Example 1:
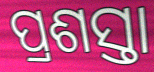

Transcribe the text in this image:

ପ୍ରଶସ୍ତା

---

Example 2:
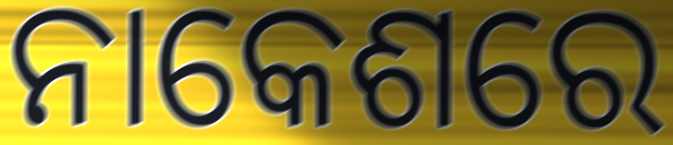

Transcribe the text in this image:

ନାକେଶରେ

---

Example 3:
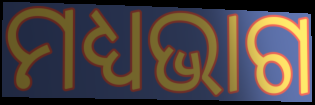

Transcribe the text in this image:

ମଧ୍ୟଭାଗ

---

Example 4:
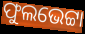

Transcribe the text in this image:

ଫୁଲଭେଟ୍ଟା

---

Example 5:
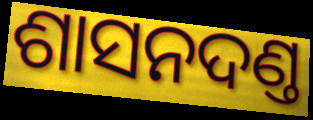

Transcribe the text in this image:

ଶାସନଦଣ୍ତ